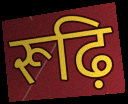
रूढ़ि